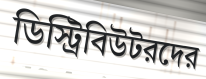
ডিস্ট্রিবিউটরদের